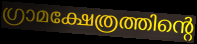
ഗ്രാമക്ഷേത്രത്തിന്റെ